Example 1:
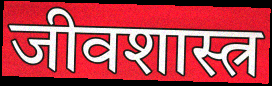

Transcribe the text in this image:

जीवशास्त्र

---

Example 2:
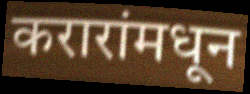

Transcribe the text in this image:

करारांमधून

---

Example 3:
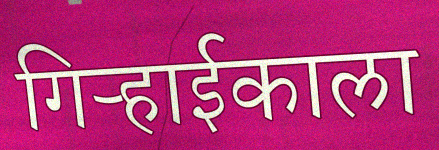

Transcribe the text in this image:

गिऱ्हाईकाला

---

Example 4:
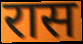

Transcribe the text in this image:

रास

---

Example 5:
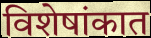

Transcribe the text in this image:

विशेषांकात